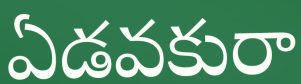
ఏడవకురా